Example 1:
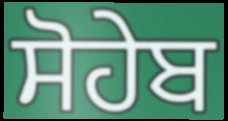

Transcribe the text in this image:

ਸੋਹੇਬ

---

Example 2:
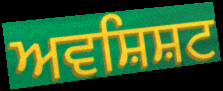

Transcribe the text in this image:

ਅਵਸ਼ਿਸ਼ਟ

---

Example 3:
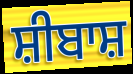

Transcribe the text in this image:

ਸ਼ੀਬਾਸ਼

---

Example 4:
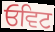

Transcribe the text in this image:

ਓਵਿਟ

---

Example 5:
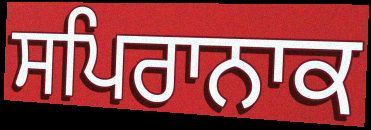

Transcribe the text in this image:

ਸਪਿਰਾਨਾਕ